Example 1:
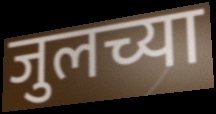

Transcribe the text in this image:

जुलच्या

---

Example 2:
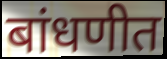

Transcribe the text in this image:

बांधणीत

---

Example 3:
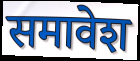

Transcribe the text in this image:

समावेश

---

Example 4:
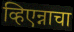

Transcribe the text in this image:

व्हिएन्नाचा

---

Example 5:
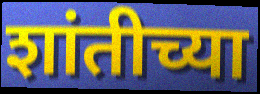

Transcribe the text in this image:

शांतीच्या